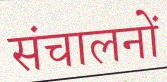
संचालनों